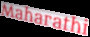
Maharathi